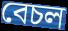
বেচল